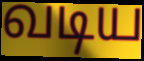
வடிய